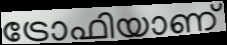
ട്രോഫിയാണ്